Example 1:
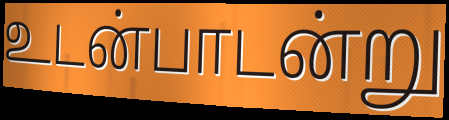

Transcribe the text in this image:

உடன்பாடன்று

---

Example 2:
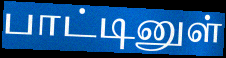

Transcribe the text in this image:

பாட்டினுள்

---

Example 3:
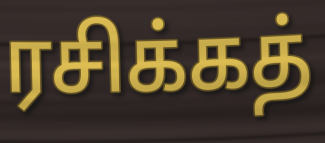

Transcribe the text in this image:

ரசிக்கத்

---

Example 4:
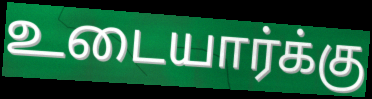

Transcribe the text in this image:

உடையார்க்கு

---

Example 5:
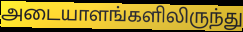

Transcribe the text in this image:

அடையாளங்களிலிருந்து